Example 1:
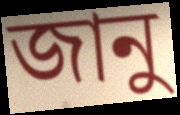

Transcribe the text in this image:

জানু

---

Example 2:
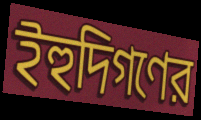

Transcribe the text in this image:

ইহুদিগণের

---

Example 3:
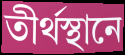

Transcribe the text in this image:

তীর্থস্থানে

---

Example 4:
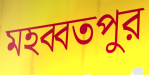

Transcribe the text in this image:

মহব্বতপুর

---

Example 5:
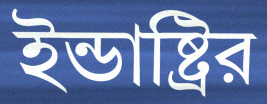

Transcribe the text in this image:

ইন্ডাষ্ট্রির